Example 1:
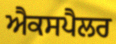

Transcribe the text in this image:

ਐਕਸਪੈਲਰ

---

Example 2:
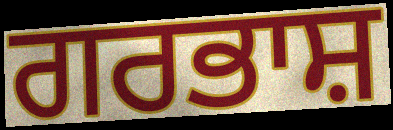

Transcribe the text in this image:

ਗਰਭਾਸ਼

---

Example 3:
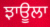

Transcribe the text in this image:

ਝਾਊਲਾ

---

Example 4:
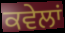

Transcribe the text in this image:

ਕਵੇਲਾਂ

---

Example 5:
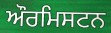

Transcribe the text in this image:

ਔਰਮਿਸਟਨ